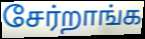
சேர்றாங்க